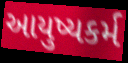
આયુષ્યકર્મ